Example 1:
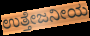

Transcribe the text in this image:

ಉತ್ತೇಜನೀಯ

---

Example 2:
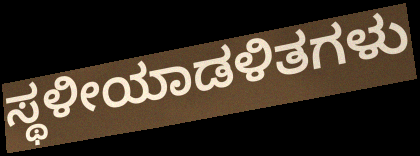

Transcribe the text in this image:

ಸ್ಥಳೀಯಾಡಳಿತಗಳು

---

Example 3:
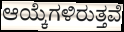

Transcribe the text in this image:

ಆಯ್ಕೆಗಳಿರುತ್ತವೆ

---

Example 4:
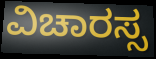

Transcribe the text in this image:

ವಿಚಾರಸ್ಸ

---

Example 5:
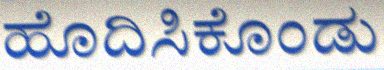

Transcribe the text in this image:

ಹೊದಿಸಿಕೊಂಡು